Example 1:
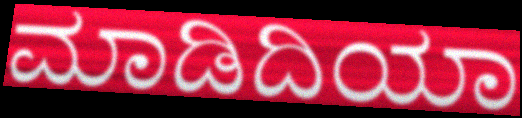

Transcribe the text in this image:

ಮಾಡಿದಿಯಾ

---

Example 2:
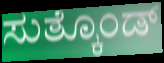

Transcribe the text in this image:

ಸುತ್ಕೊಂಡ್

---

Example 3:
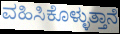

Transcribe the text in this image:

ವಹಿಸಿಕೊಳ್ಳುತ್ತಾನೆ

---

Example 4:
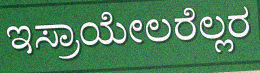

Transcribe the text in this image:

ಇಸ್ರಾಯೇಲರೆಲ್ಲರ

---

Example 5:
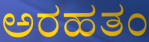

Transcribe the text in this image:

ಅರಹತಂ